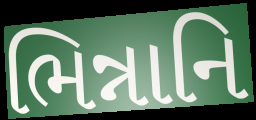
ભિન્નાનિ